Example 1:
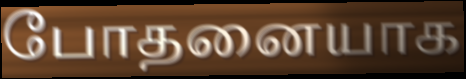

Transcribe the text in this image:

போதனையாக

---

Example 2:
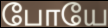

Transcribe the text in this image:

போயே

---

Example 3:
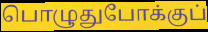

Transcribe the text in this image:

பொழுதுபோக்குப்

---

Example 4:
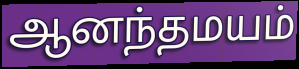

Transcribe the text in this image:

ஆனந்தமயம்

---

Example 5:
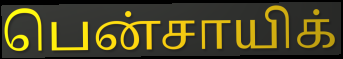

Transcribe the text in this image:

பென்சாயிக்